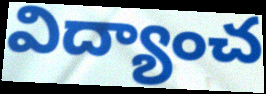
విద్యాంచ